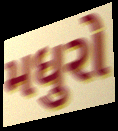
મધુરો